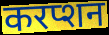
करप्शन